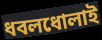
ধবলধোলাই